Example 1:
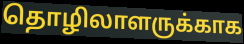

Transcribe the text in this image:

தொழிலாளருக்காக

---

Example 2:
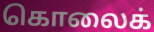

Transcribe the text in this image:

கொலைக்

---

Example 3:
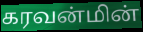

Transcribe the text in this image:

கரவன்மின்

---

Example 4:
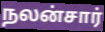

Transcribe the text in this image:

நலன்சார்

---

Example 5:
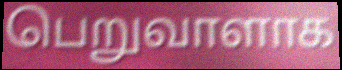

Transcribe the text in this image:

பெறுவாளாக